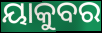
ୟାକୁବର